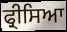
ਫ੍ਰੀਸਿਆ